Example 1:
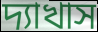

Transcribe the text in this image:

দ্যাখাস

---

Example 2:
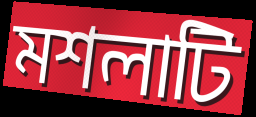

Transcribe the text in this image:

মশলাটি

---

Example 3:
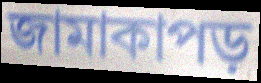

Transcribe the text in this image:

জামাকাপড়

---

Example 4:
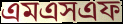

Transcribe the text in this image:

এমএসএফ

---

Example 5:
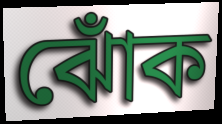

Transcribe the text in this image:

ঝোঁক